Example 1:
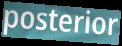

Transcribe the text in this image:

posterior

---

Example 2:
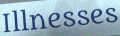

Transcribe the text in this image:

Illnesses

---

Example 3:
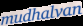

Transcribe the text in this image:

mudhalvan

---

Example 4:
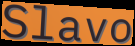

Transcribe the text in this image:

Slavo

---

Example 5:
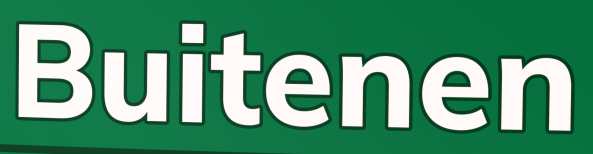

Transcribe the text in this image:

Buitenen